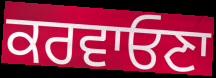
ਕਰਵਾਓਣਾ